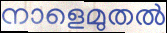
നാളെമുതൽ